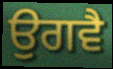
ਉਗਵੈ